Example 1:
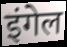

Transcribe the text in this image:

इंगेल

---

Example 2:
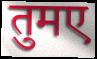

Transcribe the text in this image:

तुमए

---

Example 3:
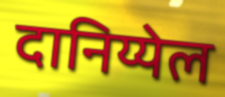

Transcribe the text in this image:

दानिय्येल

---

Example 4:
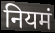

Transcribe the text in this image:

नियमं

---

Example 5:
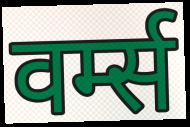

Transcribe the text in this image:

वर्म्स